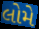
લોમે